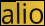
alio